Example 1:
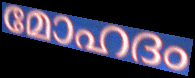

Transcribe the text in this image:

മോഹദം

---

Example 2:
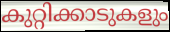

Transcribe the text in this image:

കുറ്റിക്കാടുകളും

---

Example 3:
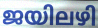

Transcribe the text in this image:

ജയിലഴി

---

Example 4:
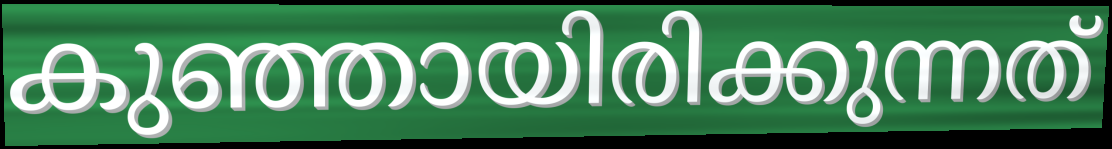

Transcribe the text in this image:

കുഞ്ഞായിരിക്കുന്നത്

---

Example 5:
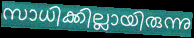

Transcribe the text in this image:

സാധിക്കില്ലായിരുന്നു